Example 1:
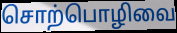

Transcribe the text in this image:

சொற்பொழிவை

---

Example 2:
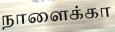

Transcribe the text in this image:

நாளைக்கா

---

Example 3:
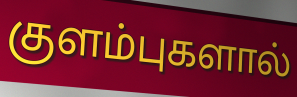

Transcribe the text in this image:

குளம்புகளால்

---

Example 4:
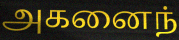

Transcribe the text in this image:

அகனைந்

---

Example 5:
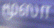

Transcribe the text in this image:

மூஸா